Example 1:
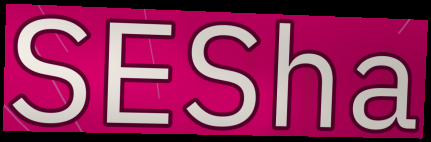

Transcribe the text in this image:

SESha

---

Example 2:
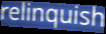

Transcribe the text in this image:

relinquish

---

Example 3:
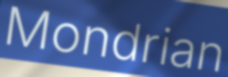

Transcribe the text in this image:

Mondrian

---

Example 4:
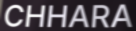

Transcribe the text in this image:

CHHARA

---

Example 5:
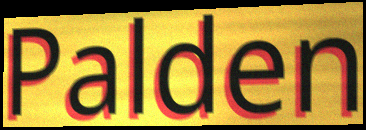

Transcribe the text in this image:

Palden